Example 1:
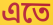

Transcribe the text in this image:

এতে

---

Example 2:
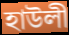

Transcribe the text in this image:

হাউলী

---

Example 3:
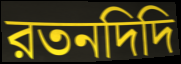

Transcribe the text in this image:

রতনদিদি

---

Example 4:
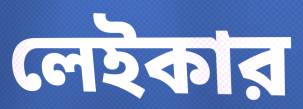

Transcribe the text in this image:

লেইকার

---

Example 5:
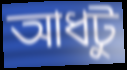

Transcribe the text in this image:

আধটু